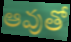
ఆవుతో